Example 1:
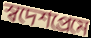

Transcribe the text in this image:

স্বদেশপ্রেমে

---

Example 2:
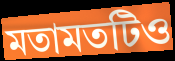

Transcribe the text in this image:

মতামতটিও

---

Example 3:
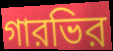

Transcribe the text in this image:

গারভির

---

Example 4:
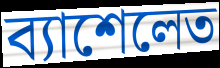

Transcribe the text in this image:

ব্যাশেলেত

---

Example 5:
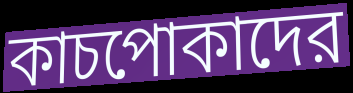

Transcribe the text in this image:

কাচপোকাদের